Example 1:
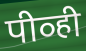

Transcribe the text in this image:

पीव्ही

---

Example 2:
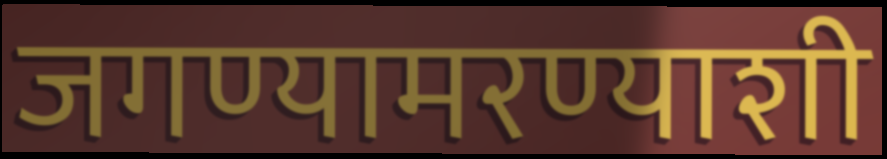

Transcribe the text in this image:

जगण्यामरण्याशी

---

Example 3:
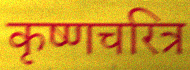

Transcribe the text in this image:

कृष्णचरित्र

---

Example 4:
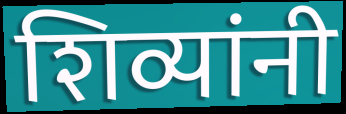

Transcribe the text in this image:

शिव्यांनी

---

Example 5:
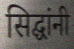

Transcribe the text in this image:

सिद्घांनी